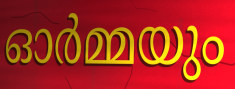
ഓർമ്മയും